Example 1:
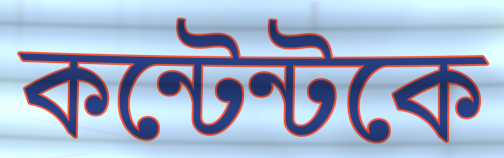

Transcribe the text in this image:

কন্টেন্টকে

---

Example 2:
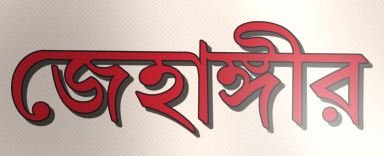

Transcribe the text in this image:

জেহাঙ্গীর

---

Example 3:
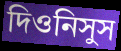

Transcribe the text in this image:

দিওনিসুস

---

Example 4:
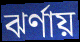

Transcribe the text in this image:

ঝর্ণায়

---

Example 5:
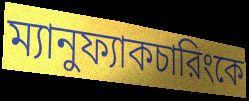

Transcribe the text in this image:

ম্যানুফ্যাকচারিংকে